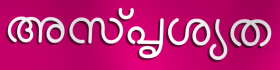
അസ്പൃശ്യത